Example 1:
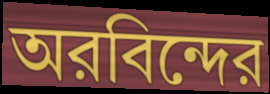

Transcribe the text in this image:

অরবিন্দের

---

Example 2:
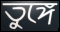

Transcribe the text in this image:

তুঙ্গে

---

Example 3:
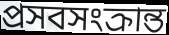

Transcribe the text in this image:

প্রসবসংক্রান্ত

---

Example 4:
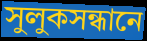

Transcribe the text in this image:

সুলুকসন্ধানে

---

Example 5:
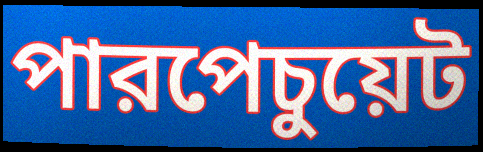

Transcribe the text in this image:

পারপেচুয়েট